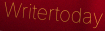
Writertoday